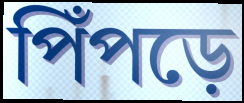
পিঁপড়ে